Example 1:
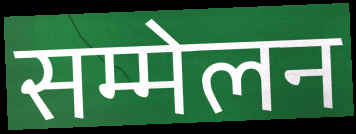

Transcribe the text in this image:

सम्‍मेलन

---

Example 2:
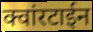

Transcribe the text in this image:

क्वांरटाईन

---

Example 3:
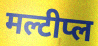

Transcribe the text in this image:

मल्टीप्ल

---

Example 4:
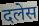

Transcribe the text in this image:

दलेस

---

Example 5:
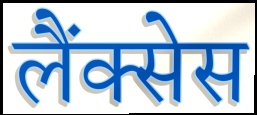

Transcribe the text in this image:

लैंक्सेस